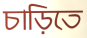
চাড়িতে